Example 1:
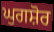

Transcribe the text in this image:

ਘੁਗਸ਼ੋਰ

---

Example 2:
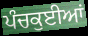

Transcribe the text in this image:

ਪੰਚਕੁਈਆਂ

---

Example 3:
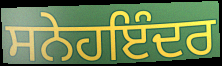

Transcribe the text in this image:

ਸਨੇਹਇੰਦਰ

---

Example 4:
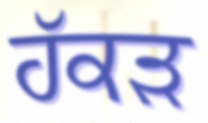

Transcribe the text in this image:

ਹੱਕੜ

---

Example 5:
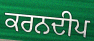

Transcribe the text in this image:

ਕਰਨਦੀਪ